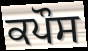
ਕਪੌਸ